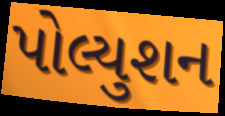
પોલ્યુશન